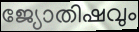
ജ്യോതിഷവും